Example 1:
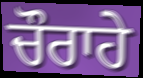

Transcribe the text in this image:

ਚੌਰਾਹੇ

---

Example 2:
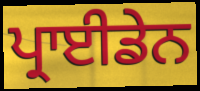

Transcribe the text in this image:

ਪ੍ਰਾਈਡੇਨ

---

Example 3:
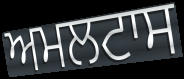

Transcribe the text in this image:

ਅਮਲਟਾਸ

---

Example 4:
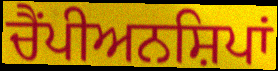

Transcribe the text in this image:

ਚੈਂਪੀਅਨਸ਼ਿਪਾਂ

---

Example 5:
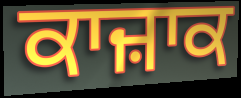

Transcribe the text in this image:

ਕਾਜ਼ਾਕ